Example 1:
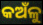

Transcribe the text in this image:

କଅଁଳୁ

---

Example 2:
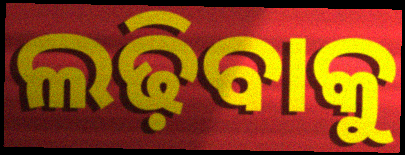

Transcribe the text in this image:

ଲଢ଼ିବାକୁ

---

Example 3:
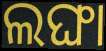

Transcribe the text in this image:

ଲଙ୍ଘା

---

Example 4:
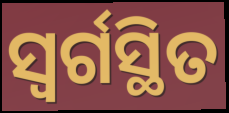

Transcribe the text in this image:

ସ୍ୱର୍ଗସ୍ଥିତ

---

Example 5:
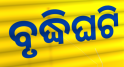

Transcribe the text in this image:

ବୃଦ୍ଧିଘଟି